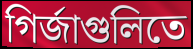
গির্জাগুলিতে